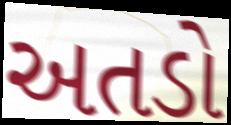
અતડો